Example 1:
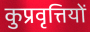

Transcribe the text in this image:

कुप्रवृत्तियों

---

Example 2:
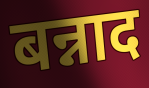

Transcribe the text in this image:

बन्नाद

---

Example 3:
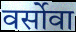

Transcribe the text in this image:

वर्सोवा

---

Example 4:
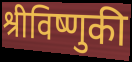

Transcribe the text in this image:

श्रीविष्णुकी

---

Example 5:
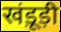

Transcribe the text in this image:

खंड़ूड़ी